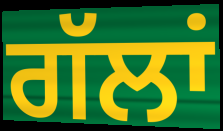
ਗੱਲਾਂ